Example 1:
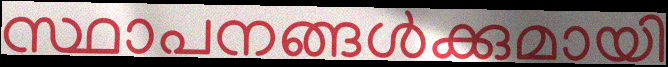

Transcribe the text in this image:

സ്ഥാപനങ്ങൾക്കുമായി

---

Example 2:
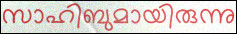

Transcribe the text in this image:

സാഹിബുമായിരുന്നു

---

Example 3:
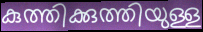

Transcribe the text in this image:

കുത്തിക്കുത്തിയുള്ള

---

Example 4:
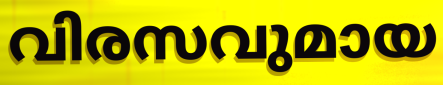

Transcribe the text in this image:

വിരസവുമായ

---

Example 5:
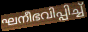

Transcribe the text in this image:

ഘനീഭവിപ്പിച്ച്